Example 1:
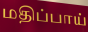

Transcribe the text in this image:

மதிப்பாய்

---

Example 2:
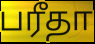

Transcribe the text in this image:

பரீதா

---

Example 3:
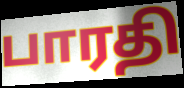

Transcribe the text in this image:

பாரதி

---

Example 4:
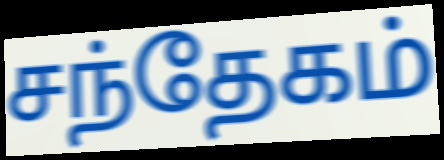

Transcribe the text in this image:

சந்தேகம்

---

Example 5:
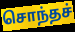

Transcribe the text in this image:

சொந்தச்